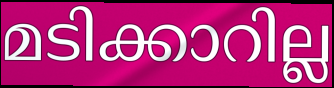
മടിക്കാറില്ല